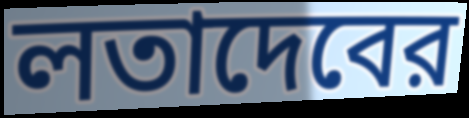
লতাদেবের